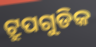
ଟ୍ରୁପଗୁଡିକ